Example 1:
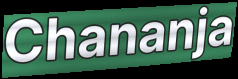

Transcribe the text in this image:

Chananja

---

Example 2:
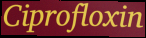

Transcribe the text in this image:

Ciprofloxin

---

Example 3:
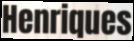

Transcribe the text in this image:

Henriques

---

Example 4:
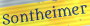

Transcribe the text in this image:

Sontheimer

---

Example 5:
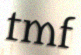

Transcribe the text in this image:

tmf